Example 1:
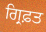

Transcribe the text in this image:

ਗ੍ਰਿਫ਼ਤ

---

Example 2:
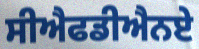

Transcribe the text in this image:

ਸੀਐਫਡੀਐਨਏ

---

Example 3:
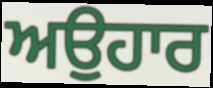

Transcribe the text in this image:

ਅਉਹਾਰ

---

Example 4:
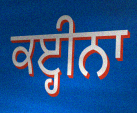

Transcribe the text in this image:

ਕੲ੍ਹੀਨਾ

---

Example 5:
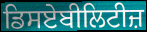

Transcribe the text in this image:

ਡਿਸਏਬੀਲਿਟੀਜ਼